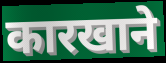
कारखाने